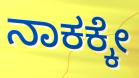
ನಾಕಕ್ಕೇ